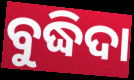
ବୁଦ୍ଧିଦା